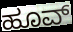
ಹೂವ್